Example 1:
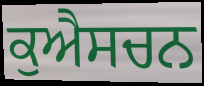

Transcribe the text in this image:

ਕੁਐਸਚਨ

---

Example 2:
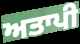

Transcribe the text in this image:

ਅਤਾਪੀ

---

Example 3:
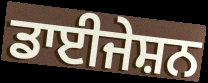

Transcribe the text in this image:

ਡਾਈਜੇਸ਼ਨ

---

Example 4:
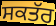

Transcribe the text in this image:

ਸਕਤੱਰ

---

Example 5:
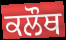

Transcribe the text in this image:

ਕਲੌਥ